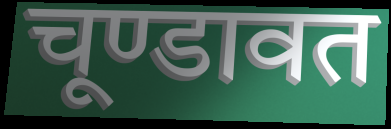
चूण्डावत